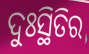
ଦୁଃସ୍ଥିତିର